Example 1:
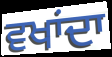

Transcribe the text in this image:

ਵਖਾਂਦਾ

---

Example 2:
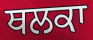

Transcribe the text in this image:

ਥਲਕਾ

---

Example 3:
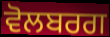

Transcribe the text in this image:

ਵੋਲਬਰਗ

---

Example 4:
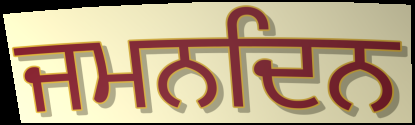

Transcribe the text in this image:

ਜਮਨਦਿਨ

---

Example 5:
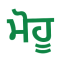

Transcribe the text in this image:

ਮੋਹੂ